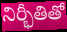
నిర్భీతితో